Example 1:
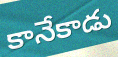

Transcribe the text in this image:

కానేకాడు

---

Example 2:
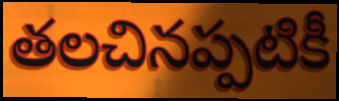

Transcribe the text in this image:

తలచినప్పటికీ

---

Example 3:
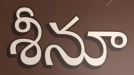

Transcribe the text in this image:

శీనూ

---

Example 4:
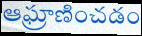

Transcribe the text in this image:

ఆఘ్రాణించడం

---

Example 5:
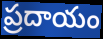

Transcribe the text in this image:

ప్రదాయం